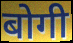
बोगी